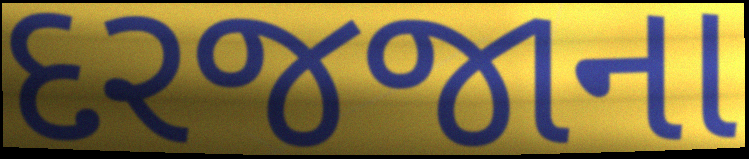
દરજજાના